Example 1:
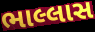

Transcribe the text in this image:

ભાલ્લાસ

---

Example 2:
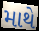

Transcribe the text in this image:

માથે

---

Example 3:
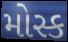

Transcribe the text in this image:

મોસ્ક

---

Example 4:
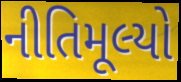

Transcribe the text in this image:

નીતિમૂલ્યો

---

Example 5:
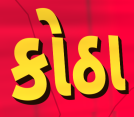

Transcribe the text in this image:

કોઠા